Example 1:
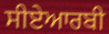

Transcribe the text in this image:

ਸੀਏਆਰਬੀ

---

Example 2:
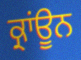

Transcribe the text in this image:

ਕ੍ਰਾਂਊਨ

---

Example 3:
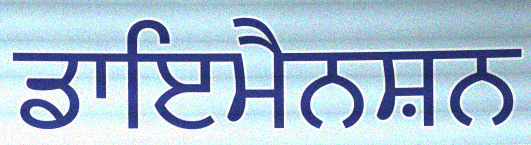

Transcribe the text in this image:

ਡਾਇਮੈਨਸ਼ਨ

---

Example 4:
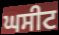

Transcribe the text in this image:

ਘਸੀਟ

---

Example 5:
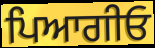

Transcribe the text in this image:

ਪਿਆਗੀਓ